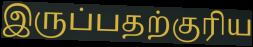
இருப்பதற்குரிய